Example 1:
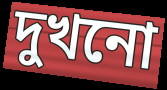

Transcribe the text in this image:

দুখনো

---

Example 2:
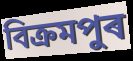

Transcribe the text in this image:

বিক্ৰমপুৰ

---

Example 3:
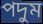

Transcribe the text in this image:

পদুম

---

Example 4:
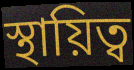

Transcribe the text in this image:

স্থায়িত্ব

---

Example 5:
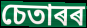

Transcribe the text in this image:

চেতাৰৰ